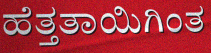
ಹೆತ್ತತಾಯಿಗಿಂತ